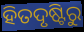
ହିତଦୃଷ୍ଟିରୁ